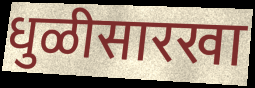
धुळीसारखा